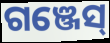
ଗଞ୍ଜେସ୍